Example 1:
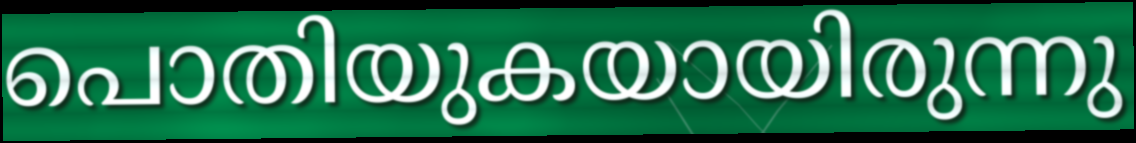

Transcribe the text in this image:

പൊതിയുകയായിരുന്നു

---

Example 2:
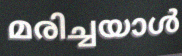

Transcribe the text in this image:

മരിച്ചയാൾ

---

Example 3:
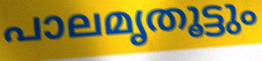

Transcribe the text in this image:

പാലമൃതൂട്ടും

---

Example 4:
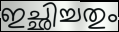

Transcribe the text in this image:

ഇച്ഛിച്ചതും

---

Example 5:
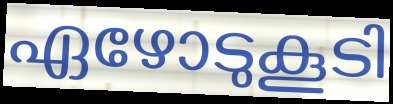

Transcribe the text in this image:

ഏഴോടുകൂടി